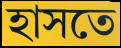
হাসতে